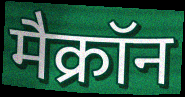
मैक्रॉन